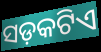
ସଡ଼କଟିଏ